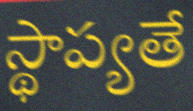
స్థాప్యతే